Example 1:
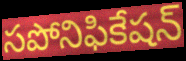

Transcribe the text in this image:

సపోనిఫికేషన్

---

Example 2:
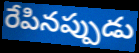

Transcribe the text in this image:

రేపినప్పుడు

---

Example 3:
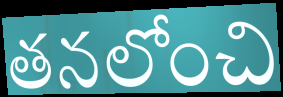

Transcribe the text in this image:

తనలోంచి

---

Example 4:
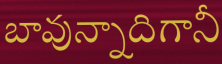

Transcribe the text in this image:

బావున్నాదిగానీ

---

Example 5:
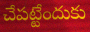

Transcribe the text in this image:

చేపట్టేందుకు